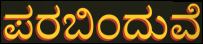
ಪರಬಿಂದುವೆ